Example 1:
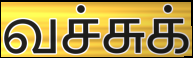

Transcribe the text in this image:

வச்சுக்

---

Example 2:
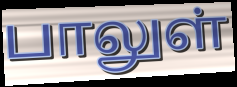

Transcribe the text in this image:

பாலுள்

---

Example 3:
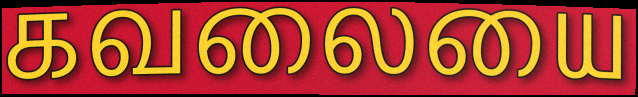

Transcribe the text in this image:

கவலையை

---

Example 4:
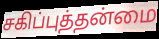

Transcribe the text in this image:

சகிப்புத்தன்மை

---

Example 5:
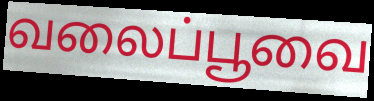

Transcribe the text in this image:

வலைப்பூவை